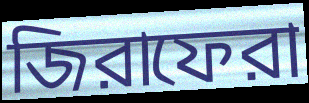
জিরাফেরা